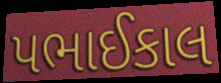
પભાઈકાલ